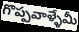
గొప్పవాళ్ళేమీ